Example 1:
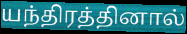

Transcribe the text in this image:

யந்திரத்தினால்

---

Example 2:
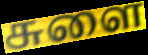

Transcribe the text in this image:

சுளை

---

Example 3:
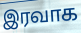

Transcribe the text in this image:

இரவாக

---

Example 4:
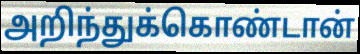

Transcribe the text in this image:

அறிந்துக்கொண்டான்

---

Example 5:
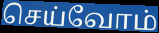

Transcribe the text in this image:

செய்வோம்